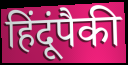
हिंदूंपैकी